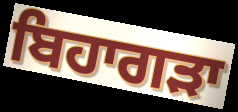
ਬਿਹਾਗੜਾ